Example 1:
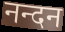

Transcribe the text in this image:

नन्दन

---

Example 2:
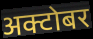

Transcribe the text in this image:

अक्टोबर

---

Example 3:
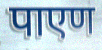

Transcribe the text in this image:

पाएण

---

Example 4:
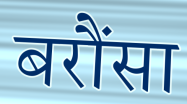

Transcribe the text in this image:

बरौंसा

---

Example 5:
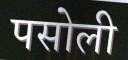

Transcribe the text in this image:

पसोली